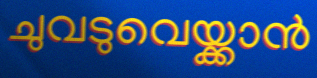
ചുവടുവെയ്ക്കാൻ